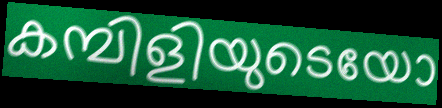
കമ്പിളിയുടെയോ